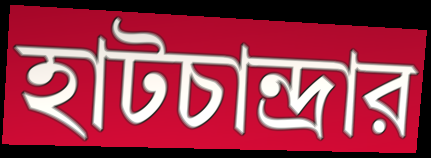
হাটচান্দ্রার